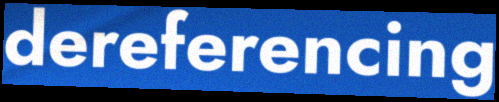
dereferencing